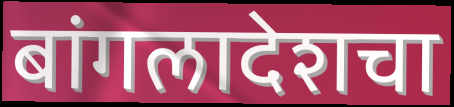
बांगलादेशचा